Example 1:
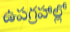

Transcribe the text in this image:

ఉపగ్రహాల్లో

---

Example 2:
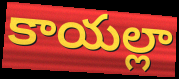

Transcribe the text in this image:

కాయల్లా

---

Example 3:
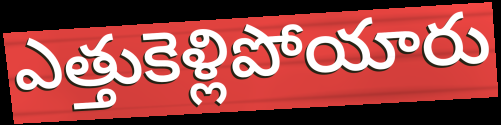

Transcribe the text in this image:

ఎత్తుకెళ్లిపోయారు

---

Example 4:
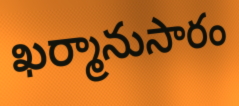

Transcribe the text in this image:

ఖర్మానుసారం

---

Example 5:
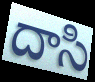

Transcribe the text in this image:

దాసి